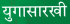
युगासारखी